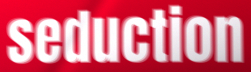
seduction